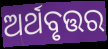
ଅର୍ଥବୃତ୍ତର